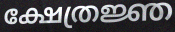
ക്ഷേത്രജ്ഞ